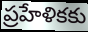
ప్రహేళికకు